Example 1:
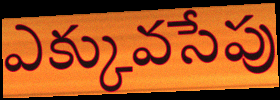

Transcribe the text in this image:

ఎక్కువసేపు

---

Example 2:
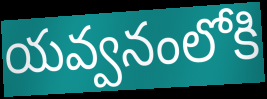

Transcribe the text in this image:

యవ్వనంలోకి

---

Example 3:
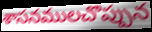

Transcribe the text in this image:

శాసనములచొప్పున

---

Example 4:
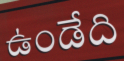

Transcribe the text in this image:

ఉండేది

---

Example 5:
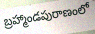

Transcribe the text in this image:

బ్రహ్మాండపురాణంలో